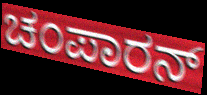
ಚಂಪಾರನ್